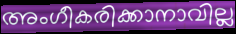
അംഗീകരിക്കാനാവില്ല